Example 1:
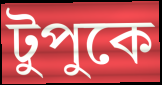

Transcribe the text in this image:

টুপুকে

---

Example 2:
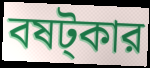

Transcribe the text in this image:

বষট্কার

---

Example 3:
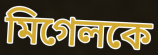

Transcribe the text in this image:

মিগেলকে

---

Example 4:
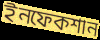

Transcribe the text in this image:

ইনফেকশান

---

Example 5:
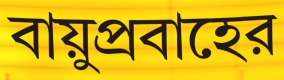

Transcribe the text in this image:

বায়ুপ্রবাহের